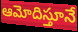
ఆమోదిస్తూనే